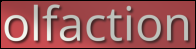
olfaction